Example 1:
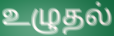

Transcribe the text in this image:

உழுதல்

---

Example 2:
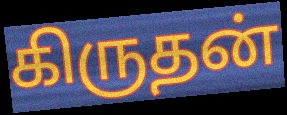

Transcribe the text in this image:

கிருதன்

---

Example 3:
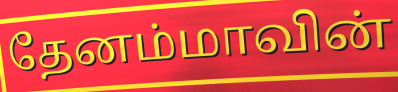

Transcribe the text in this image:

தேனம்மாவின்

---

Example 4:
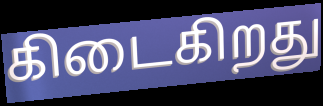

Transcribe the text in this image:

கிடைகிறது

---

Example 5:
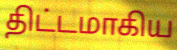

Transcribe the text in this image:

திட்டமாகிய